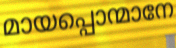
മായപ്പൊന്മാനേ